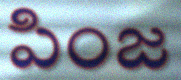
పింజ